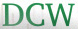
DCW